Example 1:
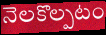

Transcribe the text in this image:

నెలకొల్పటం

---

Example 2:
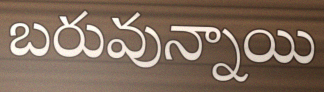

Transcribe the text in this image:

బరువున్నాయి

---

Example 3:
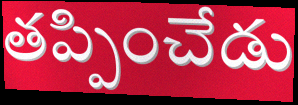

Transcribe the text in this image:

తప్పించేడు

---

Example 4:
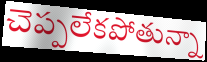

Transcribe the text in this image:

చెప్పలేకపోతున్నా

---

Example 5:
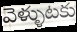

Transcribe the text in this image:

వెళ్ళుటకు